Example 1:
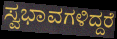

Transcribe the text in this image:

ಸ್ವಭಾವಗಳಿದ್ದರೆ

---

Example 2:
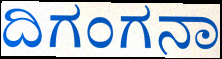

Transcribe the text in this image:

ದಿಗಂಗನಾ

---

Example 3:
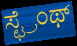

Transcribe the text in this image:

ಸ್ಟ್ರೆಂಥ್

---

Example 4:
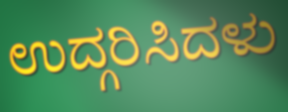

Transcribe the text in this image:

ಉದ್ಗರಿಸಿದಳು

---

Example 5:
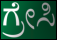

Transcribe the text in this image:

ಗ್ರೇಸಿ